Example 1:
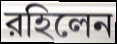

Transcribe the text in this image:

রহিলেন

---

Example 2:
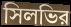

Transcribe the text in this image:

সিলভির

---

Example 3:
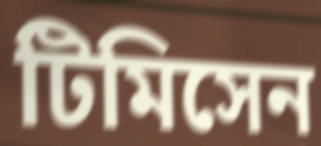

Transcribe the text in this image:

টিমিসেন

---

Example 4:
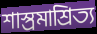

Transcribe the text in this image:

শাস্ত্রমাশ্রিত্য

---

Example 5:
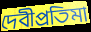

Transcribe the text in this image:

দেবীপ্রতিমা